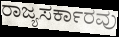
ರಾಜ್ಯಸರ್ಕಾರವು